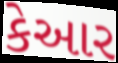
કેઆર